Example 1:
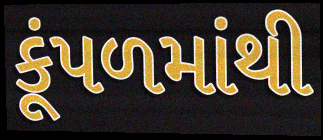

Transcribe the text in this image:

કૂંપળમાંથી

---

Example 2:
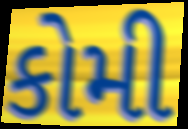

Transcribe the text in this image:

કોમી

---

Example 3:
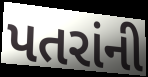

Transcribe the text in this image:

પતરાંની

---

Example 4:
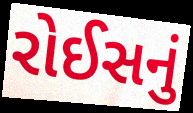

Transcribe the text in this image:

રોઈસનું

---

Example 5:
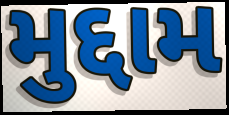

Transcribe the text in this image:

મુદ્દામ